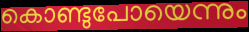
കൊണ്ടുപോയെന്നും